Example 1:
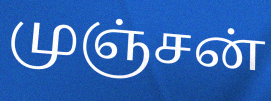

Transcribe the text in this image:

முஞ்சன்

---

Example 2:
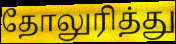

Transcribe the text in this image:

தோலுரித்து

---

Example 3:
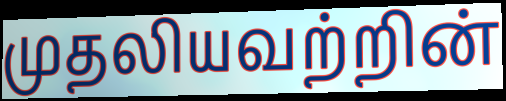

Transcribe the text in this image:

முதலியவற்றின்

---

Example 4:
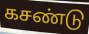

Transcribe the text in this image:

கசண்டு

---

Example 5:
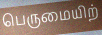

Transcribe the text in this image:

பெருமையிற்